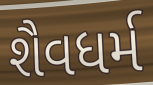
શૈવધર્મ